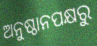
ଅନୁଷ୍ଠାନପକ୍ଷରୁ